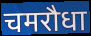
चमरौधा